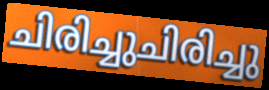
ചിരിച്ചുചിരിച്ചു